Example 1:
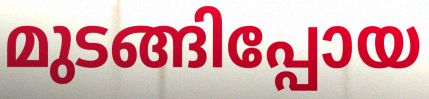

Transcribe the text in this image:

മുടങ്ങിപ്പോയ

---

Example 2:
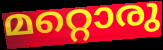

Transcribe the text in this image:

മറ്റൊരു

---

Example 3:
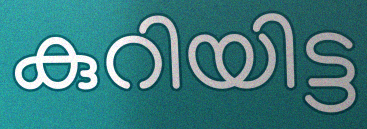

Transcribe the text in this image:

കുറിയിട്ട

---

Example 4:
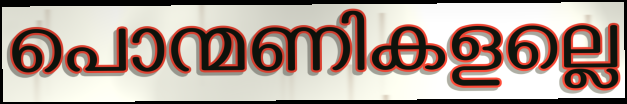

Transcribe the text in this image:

പൊന്മണികളല്ലെ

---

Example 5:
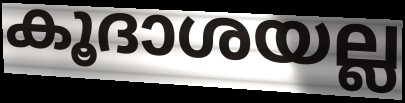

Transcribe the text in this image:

കൂദാശയല്ല